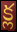
క్ల